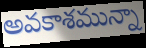
అవకాశమున్నా